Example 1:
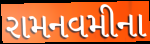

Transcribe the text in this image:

રામનવમીના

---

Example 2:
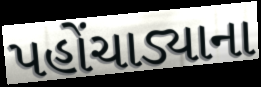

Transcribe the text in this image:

પહોંચાડ્યાના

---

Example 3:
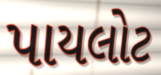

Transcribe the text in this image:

પાયલોટ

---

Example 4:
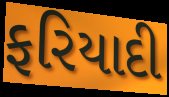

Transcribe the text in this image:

ફરિયાદી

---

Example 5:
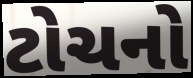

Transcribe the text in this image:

ટોચનો